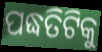
ପଦ୍ଧତିଟିକୁ